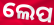
ଲେପ